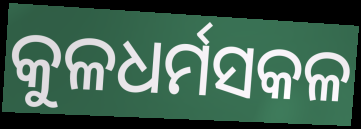
କୁଳଧର୍ମସକଳ